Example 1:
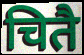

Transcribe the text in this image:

चितै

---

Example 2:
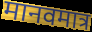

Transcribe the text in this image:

मानवमात्र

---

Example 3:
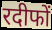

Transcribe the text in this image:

रदीफों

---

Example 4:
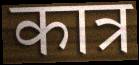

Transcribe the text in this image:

कात्र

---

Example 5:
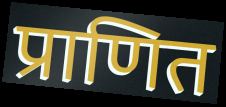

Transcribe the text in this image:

प्राणित